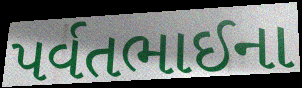
પર્વતભાઈના